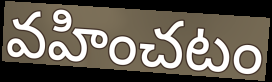
వహించటం